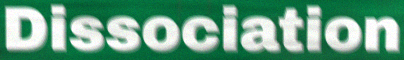
Dissociation